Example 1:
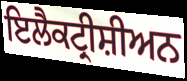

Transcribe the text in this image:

ਇਲੈਕਟ੍ਰੀਸ਼ੀਅਨ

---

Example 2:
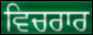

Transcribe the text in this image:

ਵਿਚਰਾਰ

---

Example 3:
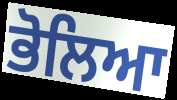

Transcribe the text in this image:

ਭੋਲਿਆ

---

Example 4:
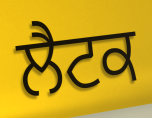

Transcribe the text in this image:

ਲੈਟਕ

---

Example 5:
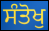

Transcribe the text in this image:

ਸੰਤੋਖੁ